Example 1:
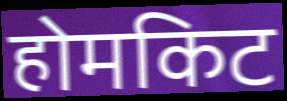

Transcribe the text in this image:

होमकिट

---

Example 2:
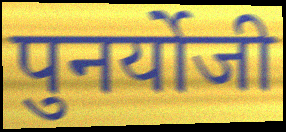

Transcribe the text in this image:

पुनर्योजी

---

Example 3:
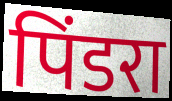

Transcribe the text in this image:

पिंडरा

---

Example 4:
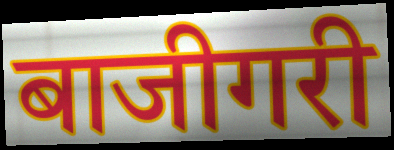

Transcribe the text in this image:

बाजीगरी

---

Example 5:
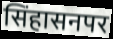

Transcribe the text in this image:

सिंहासनपर